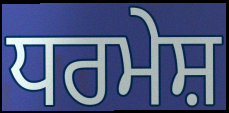
ਧਰਮੇਸ਼